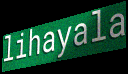
lihayala